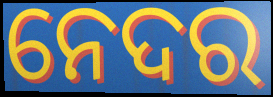
ନେଦର